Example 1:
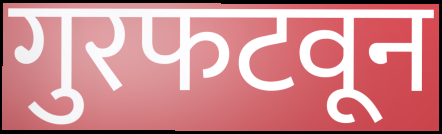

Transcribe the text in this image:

गुरफटवून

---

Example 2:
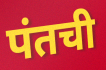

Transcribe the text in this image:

पंतची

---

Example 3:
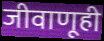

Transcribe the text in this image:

जीवाणूही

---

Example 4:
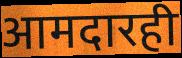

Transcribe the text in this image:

आमदारही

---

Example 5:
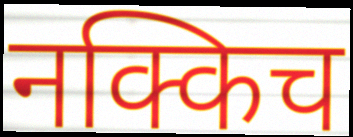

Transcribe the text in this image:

नक्किच